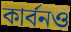
কার্বনও